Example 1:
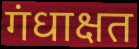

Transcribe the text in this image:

गंधाक्षत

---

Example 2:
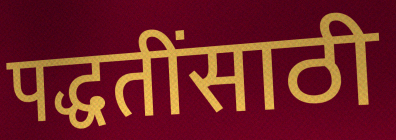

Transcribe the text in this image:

पद्धतींसाठी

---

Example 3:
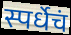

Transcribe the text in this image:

स्पर्धेचं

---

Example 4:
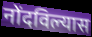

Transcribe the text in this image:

नोंदविल्यास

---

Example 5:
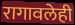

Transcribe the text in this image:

रागावलेही